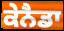
ਕੇਨੈਡਾ